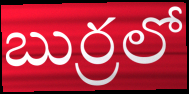
బుర్రలో